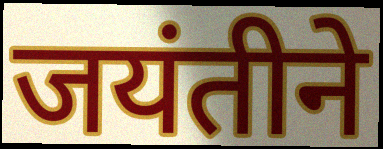
जयंतीने